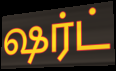
ஷர்ட்